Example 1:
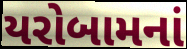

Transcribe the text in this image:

યરોબામનાં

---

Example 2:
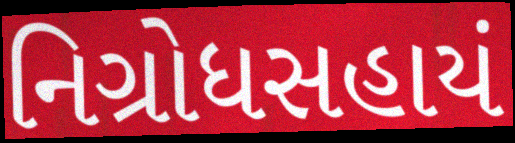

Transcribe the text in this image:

નિગ્રોધસહાયં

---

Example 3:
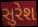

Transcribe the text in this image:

સુરેશ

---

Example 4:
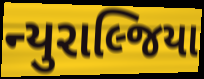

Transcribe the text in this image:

ન્યુરાલ્જિયા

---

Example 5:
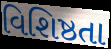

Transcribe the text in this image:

વિશિષ્ઠતા